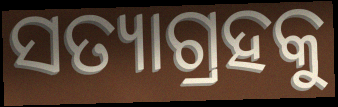
ସତ୍ୟାଗ୍ରହକୁ